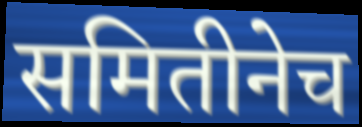
समितीनेच